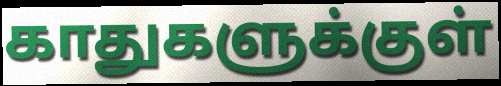
காதுகளுக்குள்